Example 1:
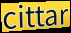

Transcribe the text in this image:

cittar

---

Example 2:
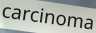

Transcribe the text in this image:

carcinoma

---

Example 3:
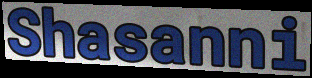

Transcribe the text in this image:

Shasanni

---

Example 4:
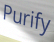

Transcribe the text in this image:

Purify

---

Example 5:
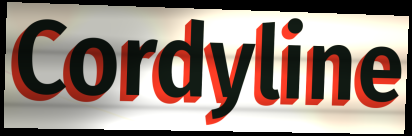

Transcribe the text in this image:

Cordyline